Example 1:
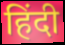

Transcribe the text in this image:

हिंदी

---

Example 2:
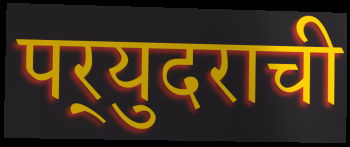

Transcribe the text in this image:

पर्युदराची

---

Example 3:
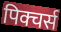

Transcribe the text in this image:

पिक्चर्स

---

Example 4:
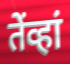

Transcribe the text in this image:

तेंव्हां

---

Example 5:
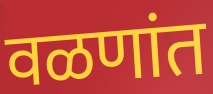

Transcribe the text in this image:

वळणांत